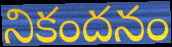
నికందనం